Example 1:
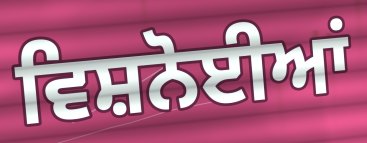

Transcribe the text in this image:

ਵਿਸ਼ਨੋਈਆਂ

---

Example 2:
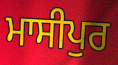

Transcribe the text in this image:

ਮਾਸੀਪੁਰ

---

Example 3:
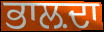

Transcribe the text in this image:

ਭਾਲ਼ਦਾ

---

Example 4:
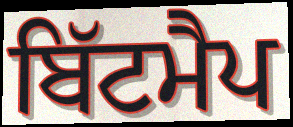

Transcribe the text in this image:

ਬਿੱਟਮੈਪ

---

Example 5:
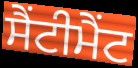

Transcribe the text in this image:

ਸੈਂਟੀਮੈਂਟ